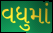
વધુમાં